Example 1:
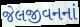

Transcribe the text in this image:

જેલજીવનનાં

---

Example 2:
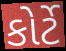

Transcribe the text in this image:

કોર્ટે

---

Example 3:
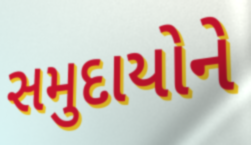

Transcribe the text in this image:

સમુદાયોને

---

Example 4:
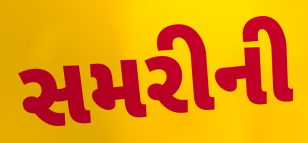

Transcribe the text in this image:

સમરીની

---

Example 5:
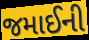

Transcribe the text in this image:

જમાઈની